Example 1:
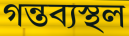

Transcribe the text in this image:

গন্তব্যস্থল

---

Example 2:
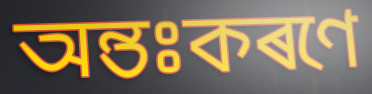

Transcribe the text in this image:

অন্তঃকৰণে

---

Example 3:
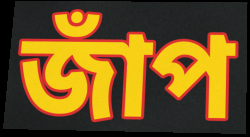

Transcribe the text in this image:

জাঁপ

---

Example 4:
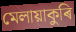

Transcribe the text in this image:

মেলায়াকুৰি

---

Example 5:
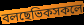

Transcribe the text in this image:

বলছেভিকসকলে